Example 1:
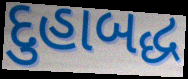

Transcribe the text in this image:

દુહાબદ્ધ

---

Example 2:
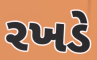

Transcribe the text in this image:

રખડે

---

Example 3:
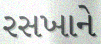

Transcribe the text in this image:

રસખાને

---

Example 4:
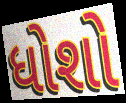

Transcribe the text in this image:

ધોશો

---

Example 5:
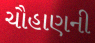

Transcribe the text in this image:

ચૌહાણની